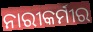
ନାରୀକର୍ମୀର